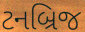
ટનબ્રિજ